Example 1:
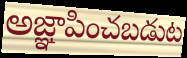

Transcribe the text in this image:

అజ్ఞాపించబడుట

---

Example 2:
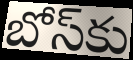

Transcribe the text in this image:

బోస్‌కు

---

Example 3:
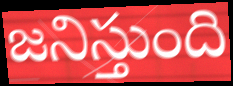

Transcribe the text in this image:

జనిస్తుంది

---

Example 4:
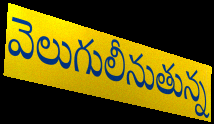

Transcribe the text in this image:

వెలుగులీనుతున్న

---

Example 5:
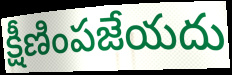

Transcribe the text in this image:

క్షీణింపజేయదు